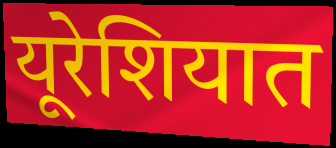
यूरेशियात